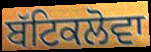
ਬੱਟਿਕਲੋਵਾ